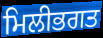
ਮਿਲੀਭਗਤ